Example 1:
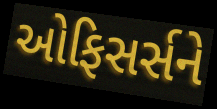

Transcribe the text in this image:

ઓફિસર્સને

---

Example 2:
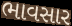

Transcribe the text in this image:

ભાવસાર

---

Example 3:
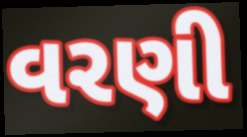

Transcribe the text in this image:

વરણી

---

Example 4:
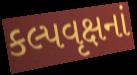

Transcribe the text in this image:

કલ્પવૃક્ષનાં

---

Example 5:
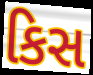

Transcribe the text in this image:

કિસ